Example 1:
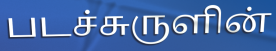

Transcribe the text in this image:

படச்சுருளின்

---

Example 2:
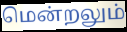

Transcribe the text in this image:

மென்றலும்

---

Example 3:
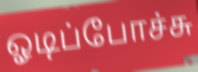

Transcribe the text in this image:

ஓடிப்போச்சு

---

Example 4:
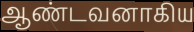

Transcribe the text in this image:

ஆண்டவனாகிய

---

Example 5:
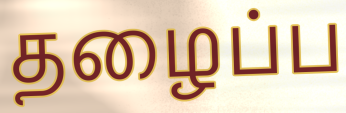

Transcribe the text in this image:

தழைப்ப